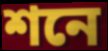
শনে